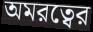
অমরত্বের